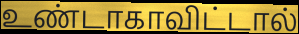
உண்டாகாவிட்டால்